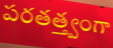
పరతత్త్వంగా